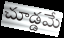
చూడ్డమే